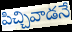
పిచ్చివాడనే